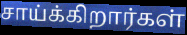
சாய்க்கிறார்கள்